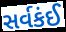
સર્વકંઈ